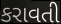
કરાવતી